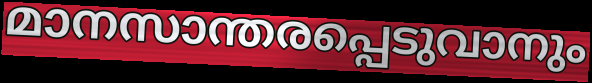
മാനസാന്തരപ്പെടുവാനും